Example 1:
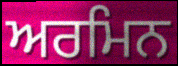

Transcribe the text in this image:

ਅਰਮਿਨ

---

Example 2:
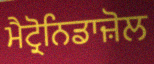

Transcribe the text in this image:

ਮੈਟ੍ਰੋਨਿਡਾਜ਼ੋਲ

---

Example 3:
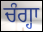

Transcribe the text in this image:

ਚੰਗ੍ਹਾ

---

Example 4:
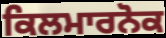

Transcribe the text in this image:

ਕਿਲਮਾਰਨੋਕ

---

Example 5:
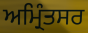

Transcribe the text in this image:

ਅਮ੍ਰਿੰਤਸਰ